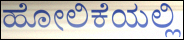
ಹೋಲಿಕೆಯಲ್ಲಿ